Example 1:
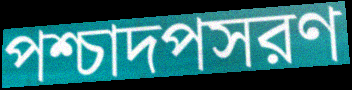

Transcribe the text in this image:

পশ্চাদপসরণ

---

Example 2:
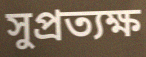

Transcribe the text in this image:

সুপ্রত্যক্ষ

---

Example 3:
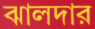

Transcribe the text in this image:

ঝালদার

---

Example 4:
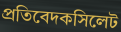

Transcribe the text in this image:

প্রতিবেদকসিলেট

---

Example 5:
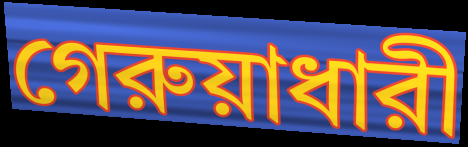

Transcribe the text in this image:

গেরুয়াধারী